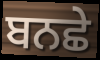
ਬਨਛੇ